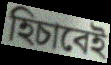
হিচাবেই